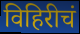
विहिरीचं